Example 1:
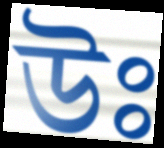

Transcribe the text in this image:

উঃ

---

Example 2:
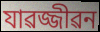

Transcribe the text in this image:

যাৱজ্জীৱন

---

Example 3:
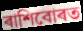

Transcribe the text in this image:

ৰাশিবোৰত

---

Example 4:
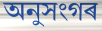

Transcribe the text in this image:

অনুসংগৰ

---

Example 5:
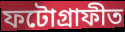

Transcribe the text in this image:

ফটোগ্ৰাফীত